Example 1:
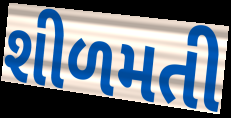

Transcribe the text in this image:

શીળમતી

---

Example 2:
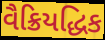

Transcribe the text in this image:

વૈક્રિયદ્ધિક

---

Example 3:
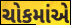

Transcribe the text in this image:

ચોકમાંએ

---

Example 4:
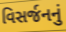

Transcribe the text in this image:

વિસર્જનનું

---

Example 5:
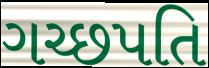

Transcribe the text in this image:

ગચ્છપતિ